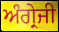
ਅੰਗ੍ਰੇਜੀ